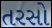
તરસો